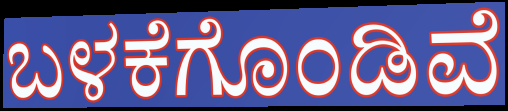
ಬಳಕೆಗೊಂಡಿವೆ